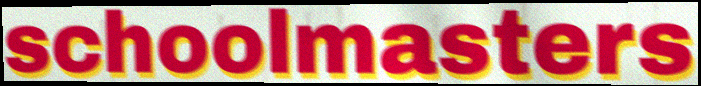
schoolmasters